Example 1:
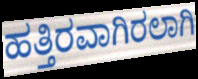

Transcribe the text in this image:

ಹತ್ತಿರವಾಗಿರಲಾಗಿ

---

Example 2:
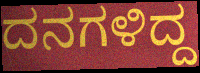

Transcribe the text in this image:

ದನಗಳಿದ್ದ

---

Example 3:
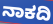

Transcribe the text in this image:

ನಾಕದಿ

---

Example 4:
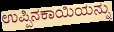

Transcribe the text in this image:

ಉಪ್ಪಿನಕಾಯಿಯನ್ನು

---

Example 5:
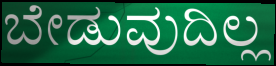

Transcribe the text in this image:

ಬೇಡುವುದಿಲ್ಲ